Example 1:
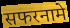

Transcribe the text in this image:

सफरनामे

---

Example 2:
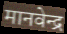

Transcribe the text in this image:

मानवेन्द्र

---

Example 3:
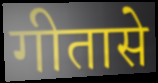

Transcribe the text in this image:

गीतासे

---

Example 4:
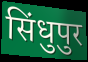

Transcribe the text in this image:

सिंधुपुर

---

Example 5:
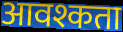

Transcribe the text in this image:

आवश्कता